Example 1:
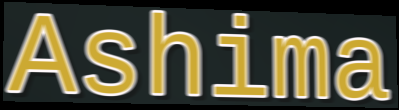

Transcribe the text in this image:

Ashima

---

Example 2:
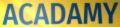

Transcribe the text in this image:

ACADAMY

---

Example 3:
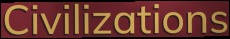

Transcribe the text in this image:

Civilizations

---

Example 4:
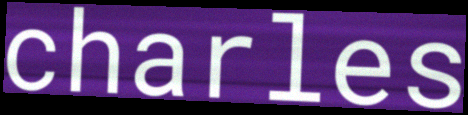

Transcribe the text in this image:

charles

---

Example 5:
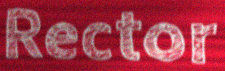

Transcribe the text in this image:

Rector